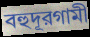
বহুদূরগামী